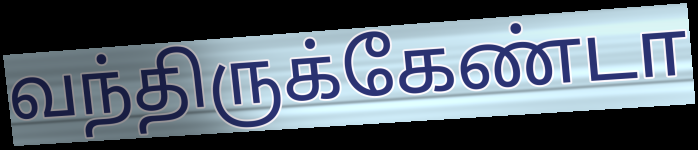
வந்திருக்கேண்டா